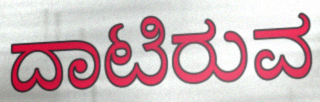
ದಾಟಿರುವ